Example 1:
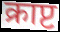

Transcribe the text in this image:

क्राप्ट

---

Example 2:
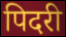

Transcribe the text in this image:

पिदरी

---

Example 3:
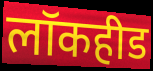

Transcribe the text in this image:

लॉकहीड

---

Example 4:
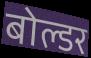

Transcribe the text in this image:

बोल्डर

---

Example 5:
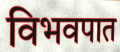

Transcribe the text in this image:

विभवपात